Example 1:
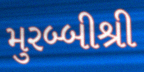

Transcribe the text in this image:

મુરબ્બીશ્રી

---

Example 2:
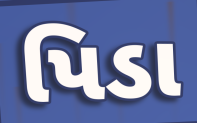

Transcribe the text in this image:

પિડા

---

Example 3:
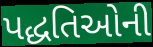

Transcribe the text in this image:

પદ્ધતિઓની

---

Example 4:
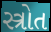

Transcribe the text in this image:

સ્ત્રોત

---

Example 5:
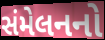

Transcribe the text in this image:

સંમેલનનો